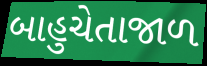
બાહુચેતાજાળ